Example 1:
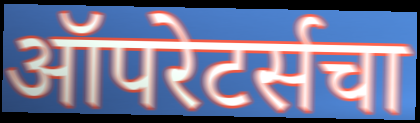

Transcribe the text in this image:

ऑपरेटर्सचा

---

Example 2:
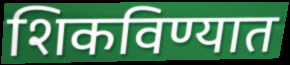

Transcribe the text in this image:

शिकविण्यात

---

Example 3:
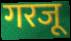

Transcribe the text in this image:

गरजू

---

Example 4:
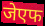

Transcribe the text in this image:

जेएफ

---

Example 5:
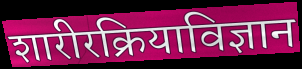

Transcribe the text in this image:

शारीरक्रियाविज्ञान